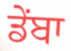
ਡੇਂਬਾ